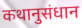
कथानुसंधान